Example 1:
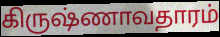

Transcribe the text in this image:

கிருஷ்ணாவதாரம்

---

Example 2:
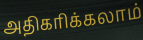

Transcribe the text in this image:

அதிகரிக்கலாம்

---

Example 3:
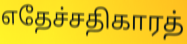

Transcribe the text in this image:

எதேச்சதிகாரத்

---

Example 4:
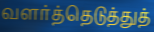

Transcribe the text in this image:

வளர்த்தெடுத்துத்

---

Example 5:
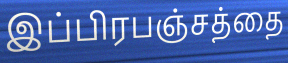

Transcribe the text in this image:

இப்பிரபஞ்சத்தை